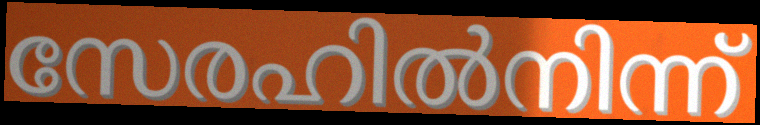
സേരഹിൽനിന്ന്